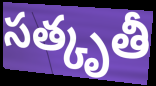
సత్కృతీ